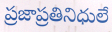
ప్రజాప్రతినిధులే